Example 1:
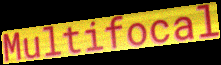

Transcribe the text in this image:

Multifocal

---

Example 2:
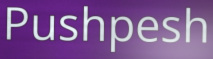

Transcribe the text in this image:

Pushpesh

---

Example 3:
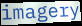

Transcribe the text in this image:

imagery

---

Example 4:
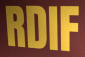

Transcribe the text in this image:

RDIF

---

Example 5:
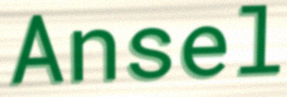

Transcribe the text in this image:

Ansel